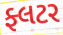
ફ્લટર